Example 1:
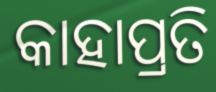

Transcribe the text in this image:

କାହାପ୍ରତି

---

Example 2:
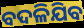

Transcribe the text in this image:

ବଦଳିଯିବ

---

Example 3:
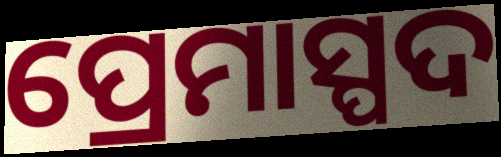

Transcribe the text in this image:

ପ୍ରେମାସ୍ପଦ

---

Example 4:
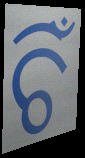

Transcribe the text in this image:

ଚିଁ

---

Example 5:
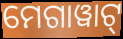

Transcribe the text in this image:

ମେଗାୱାଟ୍